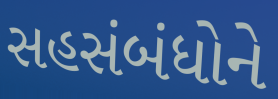
સહસંબંધોને